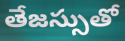
తేజస్సుతో